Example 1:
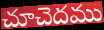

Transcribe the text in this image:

చూచెదము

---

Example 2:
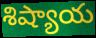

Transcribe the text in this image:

శిష్యాయ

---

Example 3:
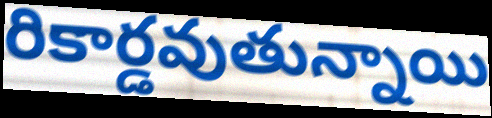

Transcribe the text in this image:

రికార్డవుతున్నాయి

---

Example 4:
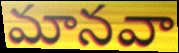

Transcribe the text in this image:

మానవా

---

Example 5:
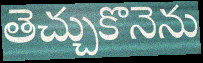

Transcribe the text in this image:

తెచ్చుకొనెను